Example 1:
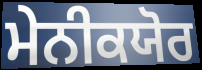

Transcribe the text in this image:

ਮੇਨੀਕਯੋਰ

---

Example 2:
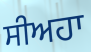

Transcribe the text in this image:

ਸੀਅਹਾ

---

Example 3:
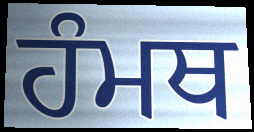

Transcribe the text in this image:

ਹੰਮਥ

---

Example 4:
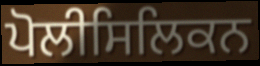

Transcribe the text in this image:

ਪੋਲੀਸਿਲਿਕਨ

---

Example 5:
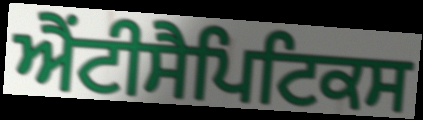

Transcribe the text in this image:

ਐਂਟੀਸੈਪਿਟਿਕਸ